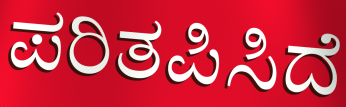
ಪರಿತಪಿಸಿದೆ